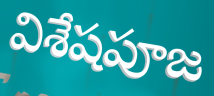
విశేషపూజ